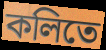
কলিতে